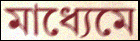
মাধ্যেমে